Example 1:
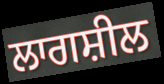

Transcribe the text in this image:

ਲਾਗਸ਼ੀਲ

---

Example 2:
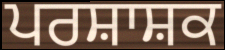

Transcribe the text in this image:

ਪਰਸ਼ਾਸ਼ਕ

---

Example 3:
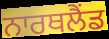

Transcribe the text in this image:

ਨਾਰਥਲੈਂਡ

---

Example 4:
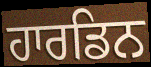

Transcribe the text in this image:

ਹਾਰਡਿਨ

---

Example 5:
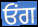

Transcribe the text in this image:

ਓਂਗ